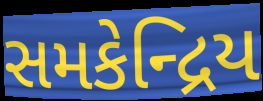
સમકેન્દ્રિય